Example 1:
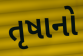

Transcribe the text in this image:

તૃષાનો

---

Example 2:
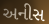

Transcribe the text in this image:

અનીસ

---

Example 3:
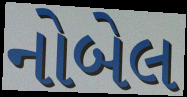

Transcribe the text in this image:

નોબેલ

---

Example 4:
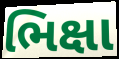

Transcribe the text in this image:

ભિક્ષા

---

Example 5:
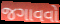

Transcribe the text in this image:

જગાવવો